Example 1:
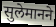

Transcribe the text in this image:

सुलेमानने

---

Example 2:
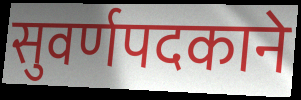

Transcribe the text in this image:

सुवर्णपदकाने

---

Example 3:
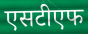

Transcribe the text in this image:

एसटीएफ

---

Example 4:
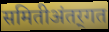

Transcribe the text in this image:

समितीअंतर्गत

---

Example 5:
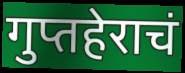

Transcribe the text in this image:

गुप्तहेराचं